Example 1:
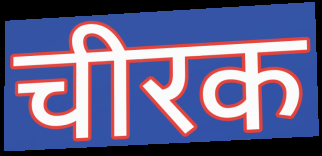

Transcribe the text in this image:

चीरक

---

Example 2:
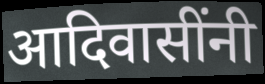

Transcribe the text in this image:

आदिवासींनी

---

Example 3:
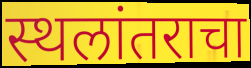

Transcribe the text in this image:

स्थलांतराचा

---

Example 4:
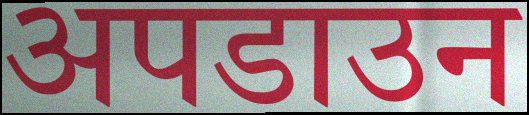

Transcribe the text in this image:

अपडाउन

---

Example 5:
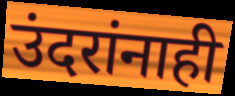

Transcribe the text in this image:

उंदरांनाही